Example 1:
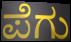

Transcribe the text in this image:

ಪೆಗು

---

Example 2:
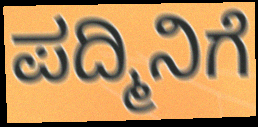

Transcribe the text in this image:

ಪದ್ಮಿನಿಗೆ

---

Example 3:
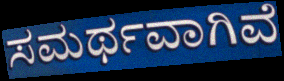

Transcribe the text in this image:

ಸಮರ್ಥವಾಗಿವೆ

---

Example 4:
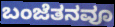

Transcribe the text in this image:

ಬಂಜೆತನವೂ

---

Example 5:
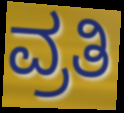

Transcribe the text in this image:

ವ್ರತಿ